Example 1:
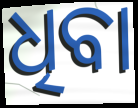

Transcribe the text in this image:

ଧିବା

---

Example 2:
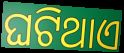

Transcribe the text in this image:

ଘଟିଥାଏ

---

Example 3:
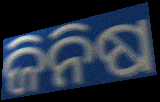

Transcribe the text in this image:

ଜିନିଷ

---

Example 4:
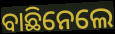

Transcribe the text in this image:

ବାଛିନେଲେ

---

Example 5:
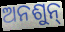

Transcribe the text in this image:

ଅନଶୁନ୍